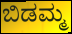
ಬಿಡಮ್ಮ